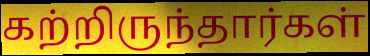
கற்றிருந்தார்கள்